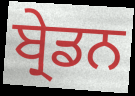
ਬ੍ਰੇਡਨ